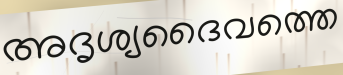
അദൃശ്യദൈവത്തെ